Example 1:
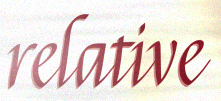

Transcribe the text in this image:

relative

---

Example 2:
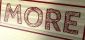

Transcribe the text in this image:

MORE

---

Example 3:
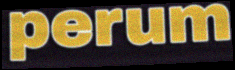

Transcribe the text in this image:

perum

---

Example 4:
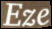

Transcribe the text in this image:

Eze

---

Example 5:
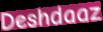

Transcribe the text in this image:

Deshdaaz